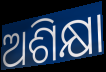
ଅଶିକ୍ଷା